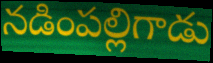
నడింపల్లిగాడు